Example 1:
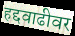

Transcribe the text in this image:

हद्दवाढीवर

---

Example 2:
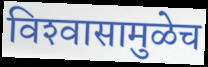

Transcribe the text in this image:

विश्वासामुळेच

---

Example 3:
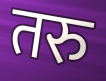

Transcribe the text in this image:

तरु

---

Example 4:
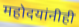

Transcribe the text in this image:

महोदयांनीही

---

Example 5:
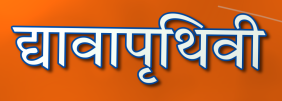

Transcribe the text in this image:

द्यावापृथिवी